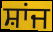
ਸ਼ਾਂਜ